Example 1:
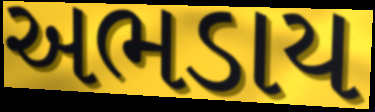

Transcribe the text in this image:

અભડાય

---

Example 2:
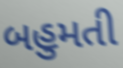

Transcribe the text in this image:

બહુમતી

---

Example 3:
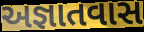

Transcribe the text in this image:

અજ્ઞાતવાસ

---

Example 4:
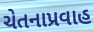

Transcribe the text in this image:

ચેતનાપ્રવાહ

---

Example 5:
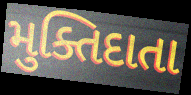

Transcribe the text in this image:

મુક્તિદાતા